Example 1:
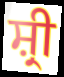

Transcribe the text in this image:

ਸ਼੍ਰੀ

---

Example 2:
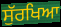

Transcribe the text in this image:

ਸੁੱਰਖਿਆ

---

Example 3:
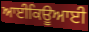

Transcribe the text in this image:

ਆਈਕਿਊਆਈ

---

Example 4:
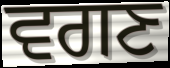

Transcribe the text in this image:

ਵਗਣ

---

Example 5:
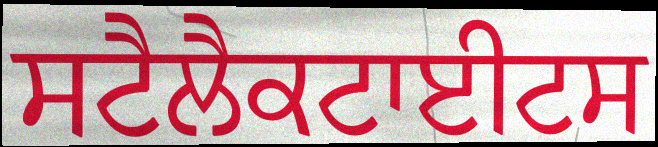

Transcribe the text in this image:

ਸਟੈਲੈਕਟਾਈਟਸ